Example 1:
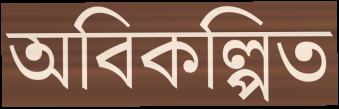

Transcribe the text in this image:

অবিকল্পিত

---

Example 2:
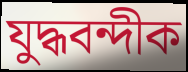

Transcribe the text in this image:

যুদ্ধবন্দীক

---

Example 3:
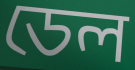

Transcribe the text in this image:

ডেল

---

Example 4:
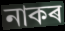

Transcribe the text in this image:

নাকৰ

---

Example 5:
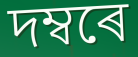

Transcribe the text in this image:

দম্বৰে